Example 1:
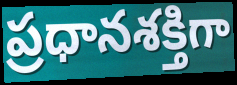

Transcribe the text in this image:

ప్రధానశక్తిగా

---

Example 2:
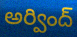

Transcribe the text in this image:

అర్వింద్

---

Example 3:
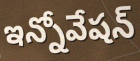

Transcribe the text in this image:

ఇన్నోవేషన్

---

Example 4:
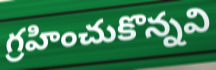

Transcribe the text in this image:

గ్రహించుకొన్నవి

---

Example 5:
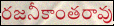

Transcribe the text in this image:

రజనీకాంతరావు